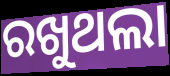
ରଖୁଥଲା